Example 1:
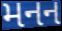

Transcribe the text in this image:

મનન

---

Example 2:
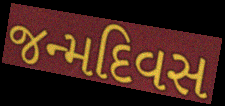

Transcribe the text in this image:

જન્મદિવસ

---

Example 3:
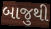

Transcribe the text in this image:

બાજુથી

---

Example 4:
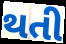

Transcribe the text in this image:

થતી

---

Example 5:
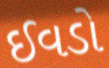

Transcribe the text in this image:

ઈવડો